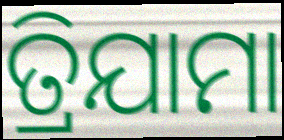
ତ୍ରିଯାମା